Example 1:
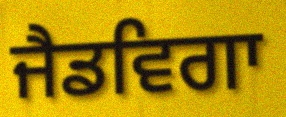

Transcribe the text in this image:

ਜੈਡਵਿਗਾ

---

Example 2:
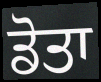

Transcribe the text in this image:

ਡੋਤਾ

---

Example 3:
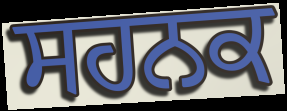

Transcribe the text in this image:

ਸਹਨਕ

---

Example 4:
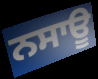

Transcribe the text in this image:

ਨਸਾਊ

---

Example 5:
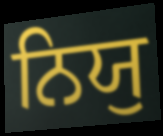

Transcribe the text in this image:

ਨਿਯੁ